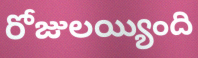
రోజులయ్యింది